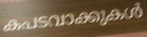
കപടവാക്കുകൾ